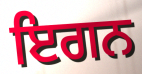
ਇਗਨ